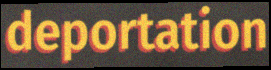
deportation